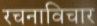
रचनाविचार